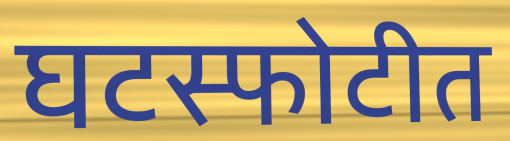
घटस्फोटीत